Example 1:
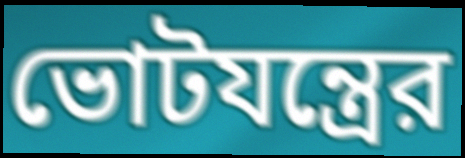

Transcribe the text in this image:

ভোটযন্ত্রের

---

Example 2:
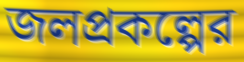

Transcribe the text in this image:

জলপ্রকল্পের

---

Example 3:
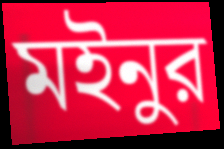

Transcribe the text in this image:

মইনুর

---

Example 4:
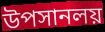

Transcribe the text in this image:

উপসানলয়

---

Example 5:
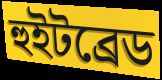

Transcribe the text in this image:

হুইটব্রেড